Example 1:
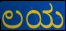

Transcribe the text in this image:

ಲಯ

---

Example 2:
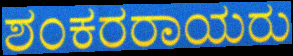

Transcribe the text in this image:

ಶಂಕರರಾಯರು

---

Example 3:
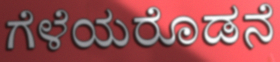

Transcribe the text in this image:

ಗೆಳೆಯರೊಡನೆ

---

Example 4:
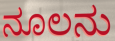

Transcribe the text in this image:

ನೂಲನು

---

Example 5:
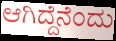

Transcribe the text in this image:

ಆಗಿದ್ದೆನೆಂದು